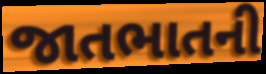
જાતભાતની